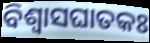
ବିଶ୍ୱାସଘାତକଃ